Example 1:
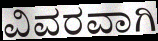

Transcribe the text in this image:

ವಿವರವಾಗಿ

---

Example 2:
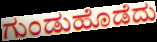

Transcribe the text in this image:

ಗುಂಡುಹೊಡೆದು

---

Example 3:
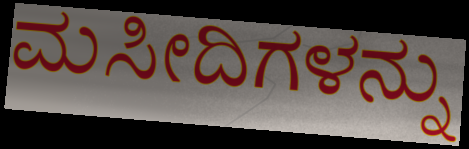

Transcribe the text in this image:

ಮಸೀದಿಗಳನ್ನು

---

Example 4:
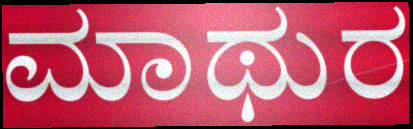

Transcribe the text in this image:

ಮಾಥುರ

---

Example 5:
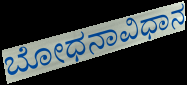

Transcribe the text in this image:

ಬೋಧನಾವಿಧಾನ